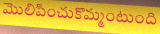
మొలిపించుకొమ్మంటుంది